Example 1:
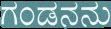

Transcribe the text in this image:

ಗಂಡನನು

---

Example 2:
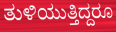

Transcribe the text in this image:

ತುಳಿಯುತ್ತಿದ್ದರೂ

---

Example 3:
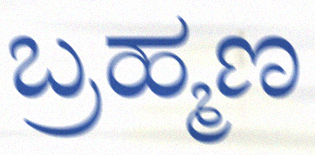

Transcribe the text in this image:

ಬ್ರಹ್ಮಣ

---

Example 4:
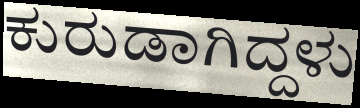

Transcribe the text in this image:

ಕುರುಡಾಗಿದ್ದಳು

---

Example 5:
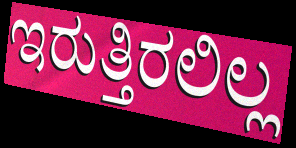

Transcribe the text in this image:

ಇರುತ್ತಿರಲಿಲ್ಲ